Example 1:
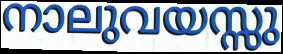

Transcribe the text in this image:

നാലുവയസ്സു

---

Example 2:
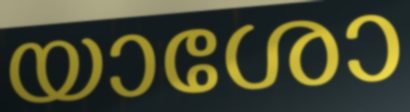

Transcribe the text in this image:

യാശോ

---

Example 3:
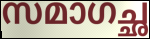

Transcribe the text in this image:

സമാഗച്ഛ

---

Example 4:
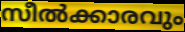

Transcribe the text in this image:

സീൽക്കാരവും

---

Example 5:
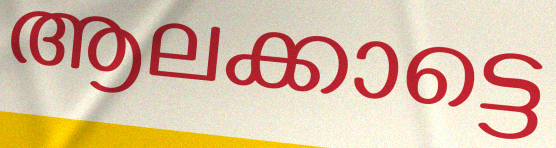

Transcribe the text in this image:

ആലക്കാട്ടെ